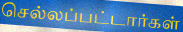
செல்லப்பட்டார்கள்